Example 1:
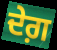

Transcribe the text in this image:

ਦੇਗ਼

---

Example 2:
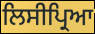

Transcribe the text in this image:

ਲਿਸੀਪ੍ਰਿਆ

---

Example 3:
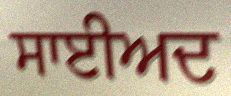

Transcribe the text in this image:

ਸਾਈਅਦ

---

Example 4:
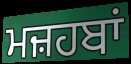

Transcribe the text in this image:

ਮਜ਼ਹਬਾਂ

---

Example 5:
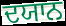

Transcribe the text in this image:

ਦਯਾਨ